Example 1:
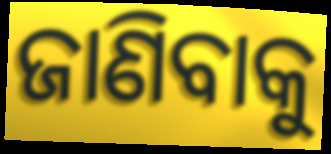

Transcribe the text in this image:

ଜାଣିବାକୁ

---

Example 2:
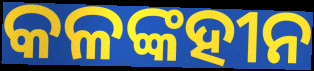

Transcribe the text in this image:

କଳଙ୍କହୀନ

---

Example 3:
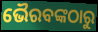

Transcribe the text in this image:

ଭୈରବଙ୍କଠାରୁ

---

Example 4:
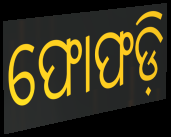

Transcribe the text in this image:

ଫୋଫଡ଼ି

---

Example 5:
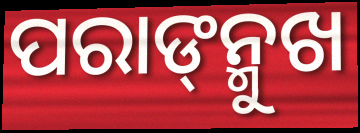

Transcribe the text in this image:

ପରାଙ୍‌ନ୍ମୁଖ